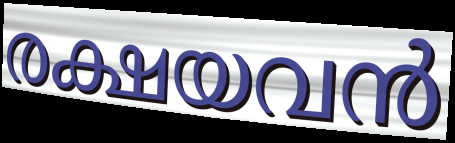
രക്ഷയവൻ